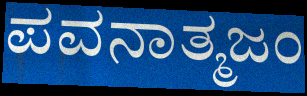
ಪವನಾತ್ಮಜಂ